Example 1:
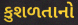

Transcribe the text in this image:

કુશળતાનો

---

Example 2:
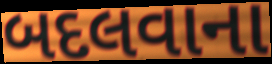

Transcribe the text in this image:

બદલવાના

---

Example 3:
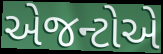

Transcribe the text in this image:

એજન્ટોએ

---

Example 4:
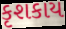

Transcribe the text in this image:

કૃશકાય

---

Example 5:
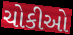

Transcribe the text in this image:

ચોકીઓ